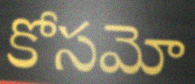
కోసమో